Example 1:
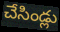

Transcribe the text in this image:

చేసిండ్లు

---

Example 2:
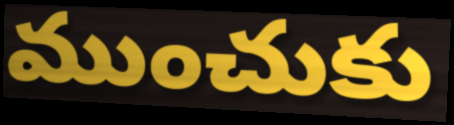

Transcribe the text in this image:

ముంచుకు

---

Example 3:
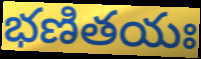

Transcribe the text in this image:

భణితయః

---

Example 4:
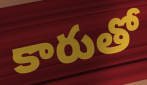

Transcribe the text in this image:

కారుతో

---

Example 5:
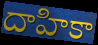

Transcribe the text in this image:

దాహికా